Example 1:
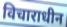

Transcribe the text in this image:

विचाराधीन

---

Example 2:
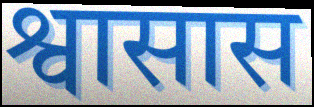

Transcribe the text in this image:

श्वासास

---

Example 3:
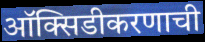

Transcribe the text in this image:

ऑक्सिडीकरणाची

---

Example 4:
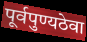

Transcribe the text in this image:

पूर्वपुण्यठेवा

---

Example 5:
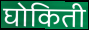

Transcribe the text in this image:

घोकिती